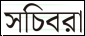
সচিবরা